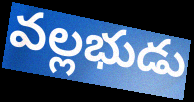
వల్లభుడు